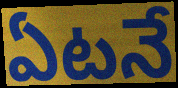
ఏటనే